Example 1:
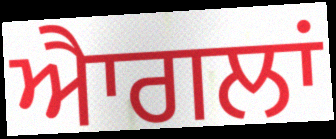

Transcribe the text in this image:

ਐਾਗਲਾਂ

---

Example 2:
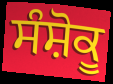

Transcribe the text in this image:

ਸੰਸ਼ੋਕੂ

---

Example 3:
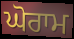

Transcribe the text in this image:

ਘੋਰਾਮ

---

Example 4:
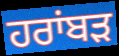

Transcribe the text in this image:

ਹਰਾਂਬੜ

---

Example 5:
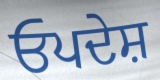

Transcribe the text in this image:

ਓਪਦੇਸ਼